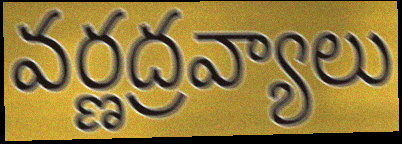
వర్ణద్రవ్యాలు